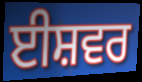
ਈਸ਼ਵਰ